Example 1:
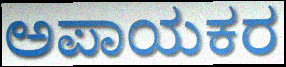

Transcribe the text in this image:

ಅಪಾಯಕರ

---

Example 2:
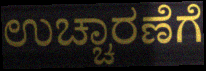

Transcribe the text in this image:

ಉಚ್ಚಾರಣೆಗೆ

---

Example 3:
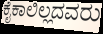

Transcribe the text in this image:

ಕೈಕಾಲಿಲ್ಲದವರು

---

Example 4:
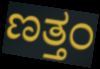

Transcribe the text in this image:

ಣತ್ತಂ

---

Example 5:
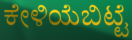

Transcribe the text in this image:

ಕೇಳಿಯೆಬಿಟ್ಟೆ